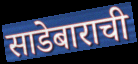
साडेबाराची